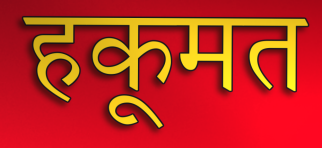
हकूमत